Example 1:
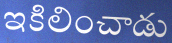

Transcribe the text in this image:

ఇకిలించాడు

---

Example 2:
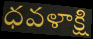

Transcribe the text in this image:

ధవళాక్షి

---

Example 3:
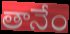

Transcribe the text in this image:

తానేం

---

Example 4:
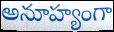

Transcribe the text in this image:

అనూహ్యంగా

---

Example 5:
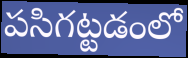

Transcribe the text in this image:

పసిగట్టడంలో